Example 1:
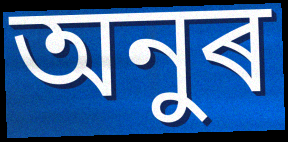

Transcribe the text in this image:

অনুৰ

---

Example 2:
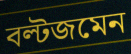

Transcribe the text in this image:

বল্টজমেন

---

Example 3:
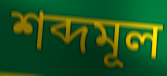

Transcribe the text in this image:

শব্দমূল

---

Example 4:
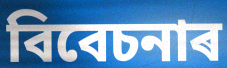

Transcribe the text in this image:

বিবেচনাৰ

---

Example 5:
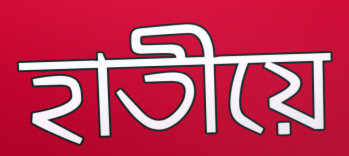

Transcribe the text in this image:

হাতীয়ে